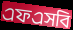
এফএসবি